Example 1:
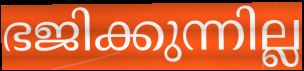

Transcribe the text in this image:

ഭജിക്കുന്നില്ല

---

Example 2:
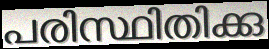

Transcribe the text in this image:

പരിസ്ഥിതിക്കു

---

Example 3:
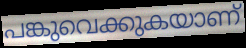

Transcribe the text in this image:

പങ്കുവെക്കുകയാണ്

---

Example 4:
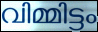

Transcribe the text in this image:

വിമ്മിട്ടം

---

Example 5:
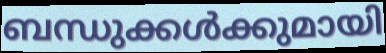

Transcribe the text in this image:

ബന്ധുക്കൾക്കുമായി